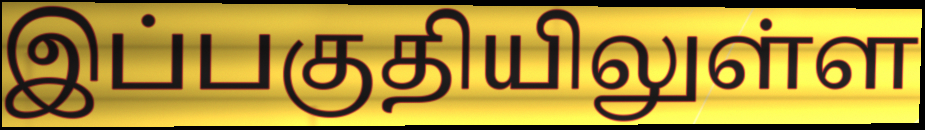
இப்பகுதியிலுள்ள